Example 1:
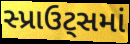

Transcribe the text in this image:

સ્પ્રાઉટ્સમાં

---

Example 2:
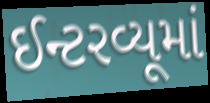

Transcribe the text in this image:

ઈન્ટરવ્યૂમાં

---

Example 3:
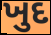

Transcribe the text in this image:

ખુદ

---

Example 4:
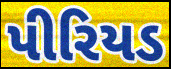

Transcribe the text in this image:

પીરિયડ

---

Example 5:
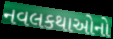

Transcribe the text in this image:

નવલકથાઓનો